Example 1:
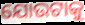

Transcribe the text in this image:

ଯୋଉଟାକୁ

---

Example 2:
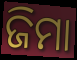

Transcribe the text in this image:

ଜିମା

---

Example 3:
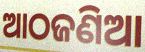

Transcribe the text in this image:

ଆଠଜଣିଆ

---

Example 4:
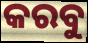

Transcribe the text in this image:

କରବୁ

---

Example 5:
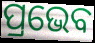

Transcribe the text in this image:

ପ୍ରଭେବ